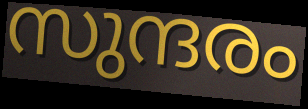
സുന്ദരം